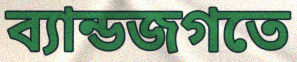
ব্যান্ডজগতে